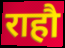
राहौ